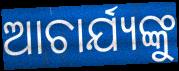
ଆଚାର୍ଯ୍ୟଙ୍କୁ